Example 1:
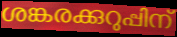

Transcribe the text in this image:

ശങ്കരക്കുറുപ്പിന്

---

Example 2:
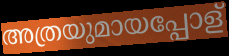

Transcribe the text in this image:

അത്രയുമായപ്പോള്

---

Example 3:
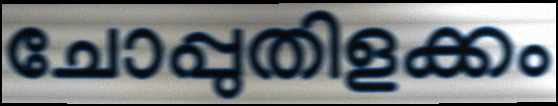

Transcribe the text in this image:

ചോപ്പുതിളക്കം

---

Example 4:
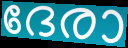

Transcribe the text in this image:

ദേരാ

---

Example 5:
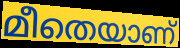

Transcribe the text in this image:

മീതെയാണ്